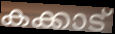
കക്കാട്